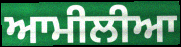
ਆਮੀਲੀਆ